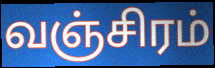
வஞ்சிரம்